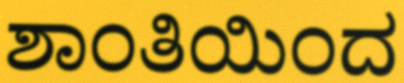
ಶಾಂತಿಯಿಂದ